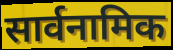
सार्वनामिक